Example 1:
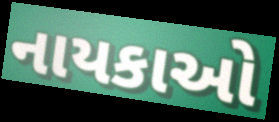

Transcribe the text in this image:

નાયકાઓ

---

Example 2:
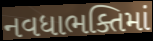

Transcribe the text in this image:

નવધાભક્તિમાં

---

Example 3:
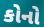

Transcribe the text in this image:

કોનો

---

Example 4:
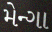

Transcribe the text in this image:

મેન્ગા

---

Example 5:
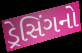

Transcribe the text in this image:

ડ્રેસિંગનો